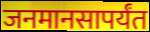
जनमानसापर्यंत